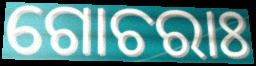
ଗୋଚରାଃ